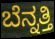
ಬೆನ್ನತ್ತಿ